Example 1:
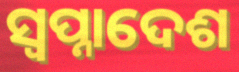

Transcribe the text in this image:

ସ୍ବପ୍ନାଦେଶ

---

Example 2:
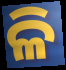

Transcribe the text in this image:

ଳି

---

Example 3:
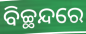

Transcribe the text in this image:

ବିଚ୍ଛନ୍ଦରେ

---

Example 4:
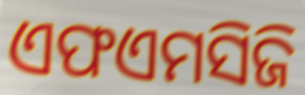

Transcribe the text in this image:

ଏଫଏମସିଜି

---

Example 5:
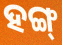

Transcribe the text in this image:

ହଙ୍ଗ୍